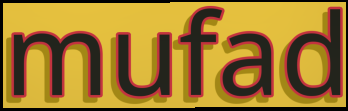
mufad